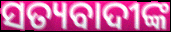
ସତ୍ୟବାଦୀଙ୍କ